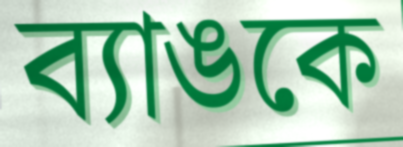
ব্যাঙকে